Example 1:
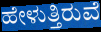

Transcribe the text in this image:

ಹೇಳುತ್ತಿರುವೆ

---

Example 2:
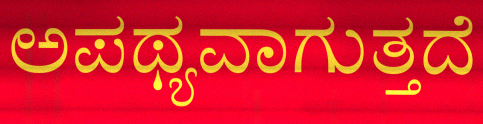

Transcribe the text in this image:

ಅಪಥ್ಯವಾಗುತ್ತದೆ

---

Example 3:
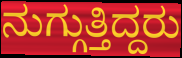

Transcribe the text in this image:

ನುಗ್ಗುತ್ತಿದ್ದರು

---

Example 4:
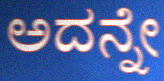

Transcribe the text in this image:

ಅದನ್ನೇ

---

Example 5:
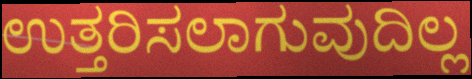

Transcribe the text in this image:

ಉತ್ತರಿಸಲಾಗುವುದಿಲ್ಲ